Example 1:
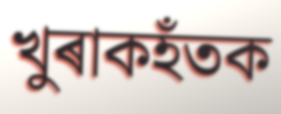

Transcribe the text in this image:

খুৰাকহঁতক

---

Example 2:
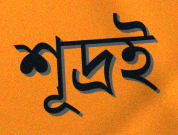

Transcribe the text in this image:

শূদ্ৰই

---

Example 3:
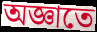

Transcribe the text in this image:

অজ্ঞাতে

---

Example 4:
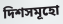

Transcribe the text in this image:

দিশসমূহো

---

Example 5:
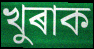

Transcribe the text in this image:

খুৰাক